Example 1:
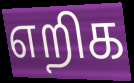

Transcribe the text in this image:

எறிக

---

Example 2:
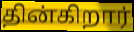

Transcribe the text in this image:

தின்கிறார்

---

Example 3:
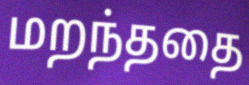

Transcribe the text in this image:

மறந்ததை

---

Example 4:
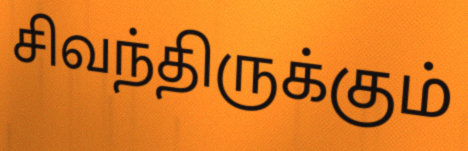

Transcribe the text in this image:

சிவந்திருக்கும்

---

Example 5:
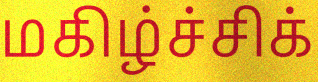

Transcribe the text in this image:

மகிழ்ச்சிக்